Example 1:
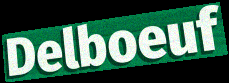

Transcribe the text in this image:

Delboeuf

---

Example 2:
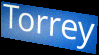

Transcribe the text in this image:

Torrey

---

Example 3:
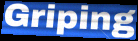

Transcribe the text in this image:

Griping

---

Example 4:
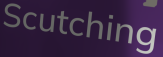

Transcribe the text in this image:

Scutching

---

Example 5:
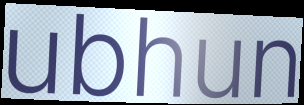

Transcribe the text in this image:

ubhun